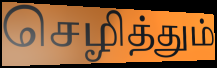
செழித்தும்